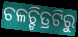
ଚଳଚ୍ଚିତ୍ରଟିରୁ